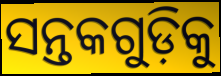
ସନ୍ତକଗୁଡ଼ିକୁ